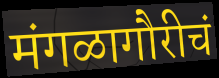
मंगळागौरीचं